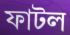
ফাটল